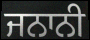
ਜਨਾਨੀ